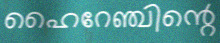
ഹൈറേഞ്ചിന്റെ